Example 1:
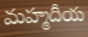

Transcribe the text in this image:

మహ్మదీయ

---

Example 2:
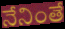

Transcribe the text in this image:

నేనింతే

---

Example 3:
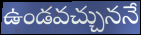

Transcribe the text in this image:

ఉండవచ్చుననే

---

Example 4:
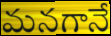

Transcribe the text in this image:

మనగానే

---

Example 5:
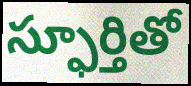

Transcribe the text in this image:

స్ఫూర్తితో